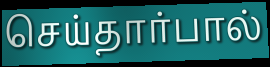
செய்தார்பால்